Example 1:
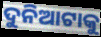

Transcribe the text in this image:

ଦୁନିଆଟାକୁ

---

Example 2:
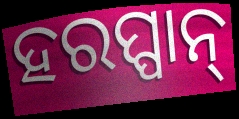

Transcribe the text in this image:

ହରପ୍ପାନ୍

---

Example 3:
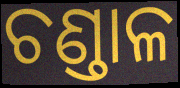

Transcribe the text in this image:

ଚଣ୍ଡାଳ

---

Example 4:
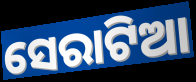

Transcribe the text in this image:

ସେରାଟିଆ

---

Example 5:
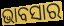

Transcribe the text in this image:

ଭାବସାର